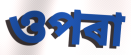
ওপৰা